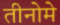
तीनोमे